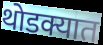
थोडक्यात